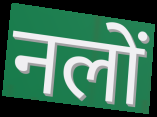
नलों